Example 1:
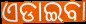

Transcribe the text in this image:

ଏଡାଇବା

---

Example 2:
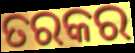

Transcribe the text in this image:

ତରକର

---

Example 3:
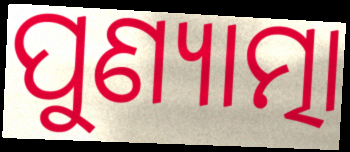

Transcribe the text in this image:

ପୁଣ୍ୟାତ୍ମା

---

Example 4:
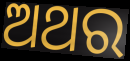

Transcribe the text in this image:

ଅଥର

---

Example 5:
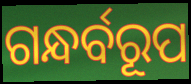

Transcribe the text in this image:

ଗନ୍ଧର୍ବରୂପ